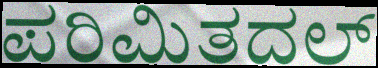
ಪರಿಮಿತದಲ್